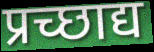
प्रच्छाद्य